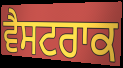
ਵੈਸਟਰਾਕ